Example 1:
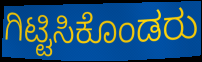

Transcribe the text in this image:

ಗಿಟ್ಟಿಸಿಕೊಂಡರು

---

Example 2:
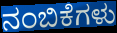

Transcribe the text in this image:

ನಂಬಿಕೆಗಳು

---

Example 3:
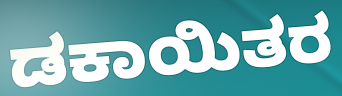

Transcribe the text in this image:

ಡಕಾಯಿತರ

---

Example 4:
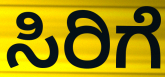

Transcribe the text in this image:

ಸಿರಿಗೆ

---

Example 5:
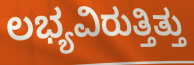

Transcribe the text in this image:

ಲಭ್ಯವಿರುತ್ತಿತ್ತು